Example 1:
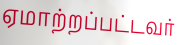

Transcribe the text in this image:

ஏமாற்றப்பட்டவர்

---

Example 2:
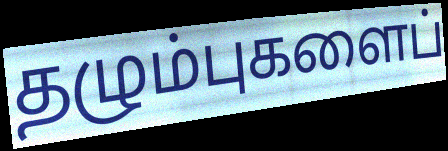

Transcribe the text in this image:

தழும்புகளைப்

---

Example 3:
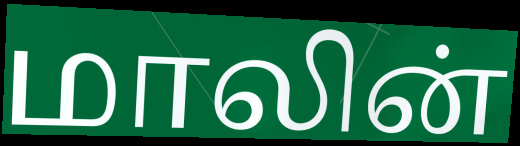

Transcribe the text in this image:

மாலின்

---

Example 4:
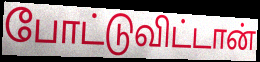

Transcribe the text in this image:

போட்டுவிட்டான்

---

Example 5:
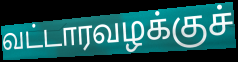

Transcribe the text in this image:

வட்டாரவழக்குச்